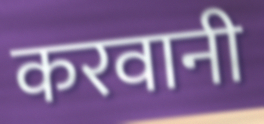
करवानी